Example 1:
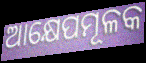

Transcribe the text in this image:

ଆକ୍ଷେପମୂଳକ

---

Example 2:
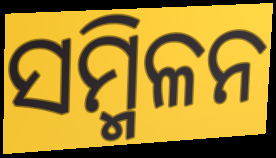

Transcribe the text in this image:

ସମ୍ମିଳନ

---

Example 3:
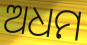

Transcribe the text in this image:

ଅଧମ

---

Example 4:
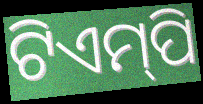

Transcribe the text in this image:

ଟିଏମ୍‌ପି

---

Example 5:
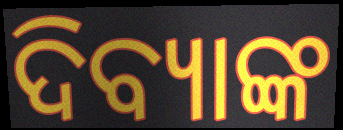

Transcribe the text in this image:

ଦିବ୍ୟାଙ୍କ